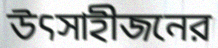
উৎসাহীজনের